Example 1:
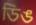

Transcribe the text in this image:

ডিঙ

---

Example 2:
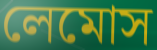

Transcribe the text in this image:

লেমোস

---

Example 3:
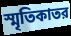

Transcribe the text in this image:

স্মৃতিকাতর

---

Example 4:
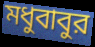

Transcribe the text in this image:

মধুবাবুর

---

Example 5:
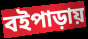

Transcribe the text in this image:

বইপাড়ায়